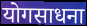
योगसाधना